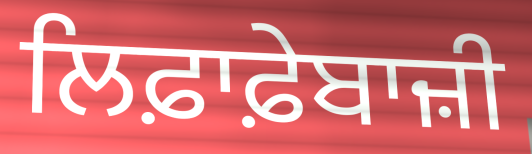
ਲਿਫ਼ਾਫ਼ੇਬਾਜ਼ੀ